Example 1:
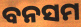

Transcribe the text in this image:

ବନସମ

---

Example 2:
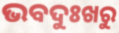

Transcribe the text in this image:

ଭବଦୁଃଖରୁ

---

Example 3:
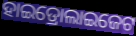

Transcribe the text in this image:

ହାଇଡ୍ରୋଲାଇଜେଟ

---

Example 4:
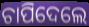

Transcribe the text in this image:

ଚାପିଦେଲେ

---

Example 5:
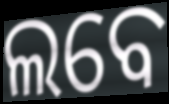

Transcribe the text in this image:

ଲବେ